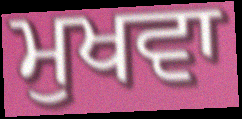
ਮੁਖਵਾ